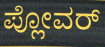
ಪ್ಲೋವರ್